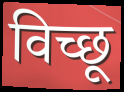
विच्छू